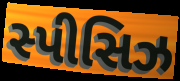
સ્પીસિઝ